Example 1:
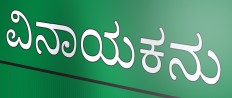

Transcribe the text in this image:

ವಿನಾಯಕನು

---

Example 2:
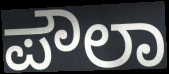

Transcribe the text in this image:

ಪೌಲಾ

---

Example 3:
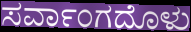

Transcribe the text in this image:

ಸರ್ವಾಂಗದೊಳು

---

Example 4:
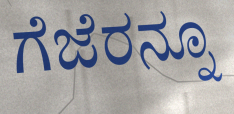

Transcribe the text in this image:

ಗೆಜೆರನ್ನೂ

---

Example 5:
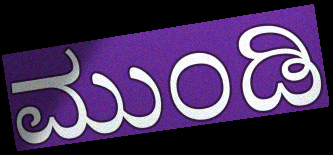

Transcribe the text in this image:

ಮುಂಡಿ